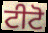
ਟੀਟੋ